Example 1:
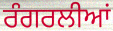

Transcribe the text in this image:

ਰੰਗਰਲੀਆਂ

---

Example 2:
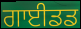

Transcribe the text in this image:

ਗਾਈਡਡ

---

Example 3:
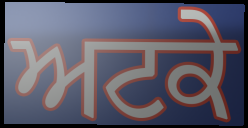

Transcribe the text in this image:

ਅਟਕੇ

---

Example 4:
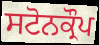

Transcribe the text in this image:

ਸਟੋਨਕ੍ਰੌਪ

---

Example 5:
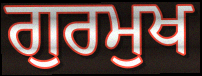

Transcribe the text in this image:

ਗੁਰਮੁਖ